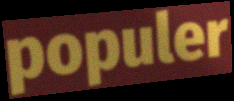
populer